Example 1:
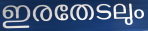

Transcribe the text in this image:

ഇരതേടലും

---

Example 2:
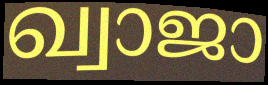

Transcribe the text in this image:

ഖ്വാജാ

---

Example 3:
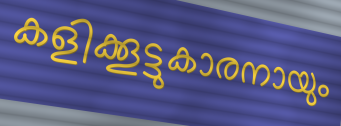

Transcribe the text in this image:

കളിക്കൂട്ടുകാരനായും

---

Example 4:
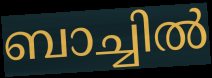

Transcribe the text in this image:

ബാച്ചിൽ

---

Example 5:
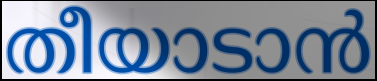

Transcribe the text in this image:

തീയാടാൻ